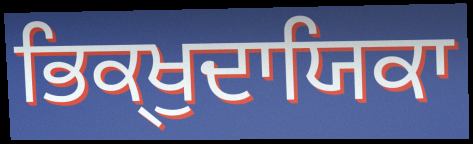
ਭਿਕ੍ਖੁਦਾਯਿਕਾ